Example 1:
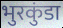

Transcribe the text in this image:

भुरकुंडा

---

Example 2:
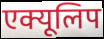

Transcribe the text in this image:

एक्यूलिप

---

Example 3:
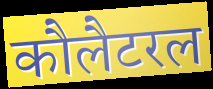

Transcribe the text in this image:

कौलैटरल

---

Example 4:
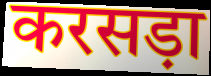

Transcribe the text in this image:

करसड़ा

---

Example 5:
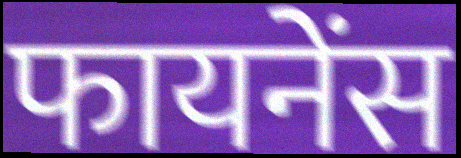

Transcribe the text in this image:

फायनेंस